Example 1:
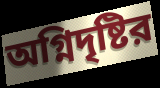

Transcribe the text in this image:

অগ্নিদৃষ্টির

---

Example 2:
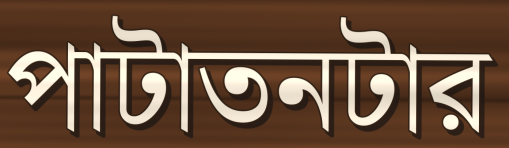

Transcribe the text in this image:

পাটাতনটার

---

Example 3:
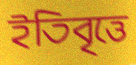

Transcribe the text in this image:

ইতিবৃত্তে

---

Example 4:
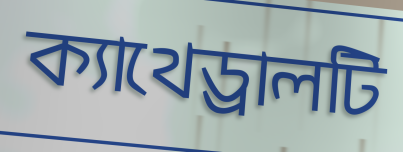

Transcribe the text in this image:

ক্যাথেড্রালটি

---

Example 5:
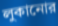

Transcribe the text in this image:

লুকানোর